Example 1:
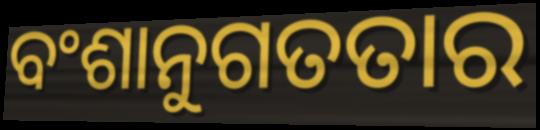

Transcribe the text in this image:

ବଂଶାନୁଗତତାର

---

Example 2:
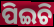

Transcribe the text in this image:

ପିଇଚି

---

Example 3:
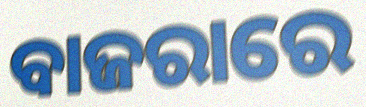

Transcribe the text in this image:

ବାଜରାରେ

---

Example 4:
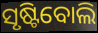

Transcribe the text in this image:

ସୃଷ୍ଟିବୋଲି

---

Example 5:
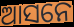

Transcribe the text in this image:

ଆସନେ